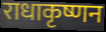
राधाकृष्णन